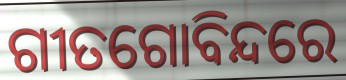
ଗୀତଗୋବିନ୍ଦରେ